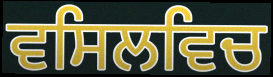
ਵਸਿਲਵਿਚ